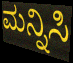
ಮನ್ನಿಸಿ